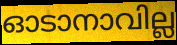
ഓടാനാവില്ല